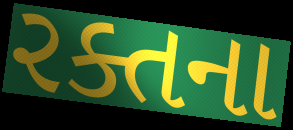
રક્તના